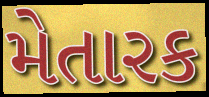
મેતારક